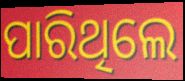
ପାରିଥିଲେ